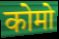
कोमो